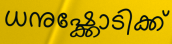
ധനുഷ്ക്കോടിക്ക്